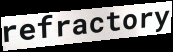
refractory